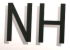
NH